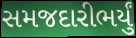
સમજદારીભર્યું